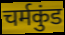
चर्मकुंड